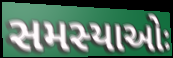
સમસ્યાઓઃ